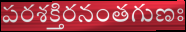
పరశక్తిరనంతగుణః